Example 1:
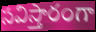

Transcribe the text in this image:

సవిస్తారంగా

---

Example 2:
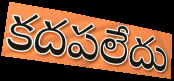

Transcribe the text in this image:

కదపలేదు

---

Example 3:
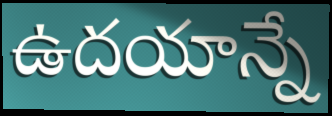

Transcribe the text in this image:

ఉదయాన్నే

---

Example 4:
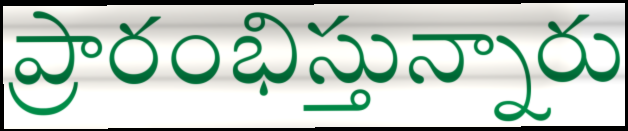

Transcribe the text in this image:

ప్రారంభిస్తున్నారు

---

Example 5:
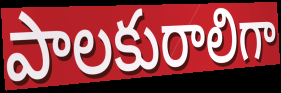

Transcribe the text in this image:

పాలకురాలిగా